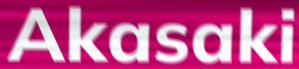
Akasaki